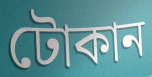
টোকান